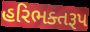
હરિભક્તરૂપ